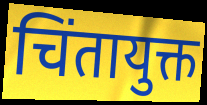
चिंतायुक्त